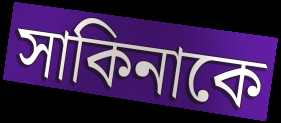
সাকিনাকে